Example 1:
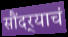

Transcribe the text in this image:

सौंदर्याचं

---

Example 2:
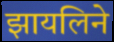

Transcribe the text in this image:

झायलिने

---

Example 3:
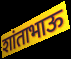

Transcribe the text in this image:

शांताभाऊ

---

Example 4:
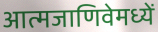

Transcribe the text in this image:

आत्मजाणिवेमध्यें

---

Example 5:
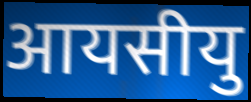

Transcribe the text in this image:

आयसीयु